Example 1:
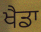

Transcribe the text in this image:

ਖੈਡਾ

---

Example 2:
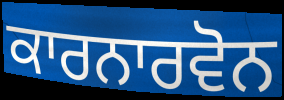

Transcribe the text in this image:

ਕਾਰਨਾਰਵੋਨ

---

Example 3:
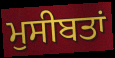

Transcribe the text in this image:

ਮੁਸੀਬਤਾਂ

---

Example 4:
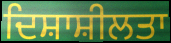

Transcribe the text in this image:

ਦਿਸ਼ਾਸ਼ੀਲਤਾ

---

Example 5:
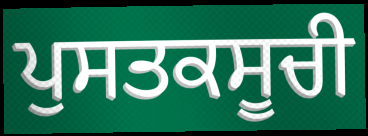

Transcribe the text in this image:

ਪੁਸਤਕਸੂਚੀ